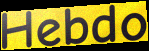
Hebdo